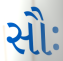
સૌઃ